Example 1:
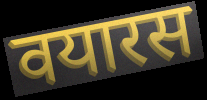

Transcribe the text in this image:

वयारस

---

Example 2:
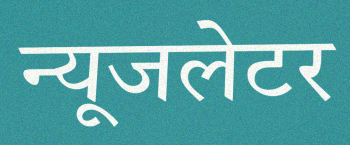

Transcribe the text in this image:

न्यूजलेटर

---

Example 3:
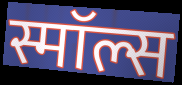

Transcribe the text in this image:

स्मॉल्स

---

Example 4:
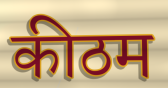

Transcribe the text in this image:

कीठम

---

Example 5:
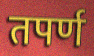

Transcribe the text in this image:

तपर्ण